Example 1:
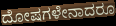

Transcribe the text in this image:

ದೋಷಗಳೇನಾದರೂ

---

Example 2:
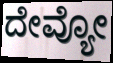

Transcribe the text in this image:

ದೇವ್ಯೋ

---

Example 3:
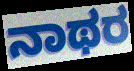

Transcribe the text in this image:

ನಾಥರ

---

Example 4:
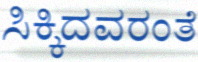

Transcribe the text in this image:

ಸಿಕ್ಕಿದವರಂತೆ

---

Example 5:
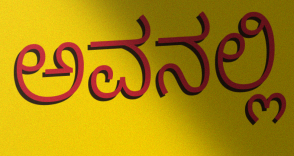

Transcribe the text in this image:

ಅವನಲ್ಲಿ